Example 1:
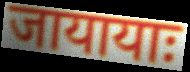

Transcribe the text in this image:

जायायाः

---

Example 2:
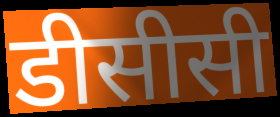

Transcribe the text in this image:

डीसीसी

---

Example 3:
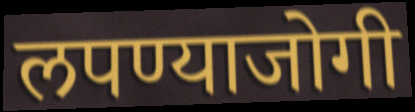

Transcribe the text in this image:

लपण्याजोगी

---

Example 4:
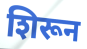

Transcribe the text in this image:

शिरून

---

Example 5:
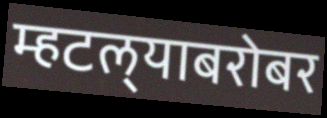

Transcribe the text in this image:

म्हटल्याबरोबर